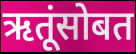
ऋतूंसोबत